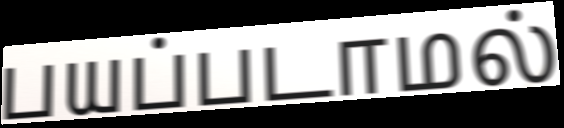
பயப்படாமல்